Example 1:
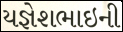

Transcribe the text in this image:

યજ્ઞેશભાઇની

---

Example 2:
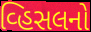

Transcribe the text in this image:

વ્હિસલનો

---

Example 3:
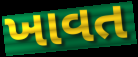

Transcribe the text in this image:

ખાવત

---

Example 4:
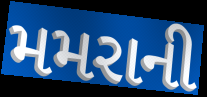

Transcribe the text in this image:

મમરાની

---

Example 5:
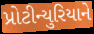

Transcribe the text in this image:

પ્રોટીન્યુરિયાને